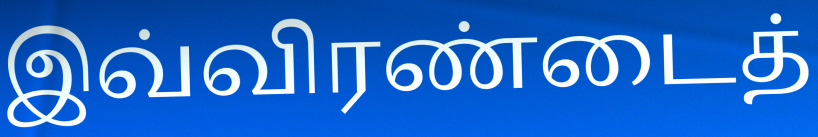
இவ்விரண்டைத்